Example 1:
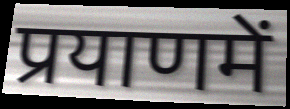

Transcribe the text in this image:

प्रयाणमें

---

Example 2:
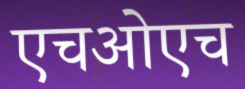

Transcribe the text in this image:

एचओएच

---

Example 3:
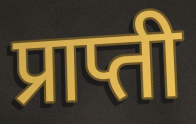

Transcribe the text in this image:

प्राप्ती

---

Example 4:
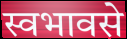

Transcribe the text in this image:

स्वभावसे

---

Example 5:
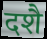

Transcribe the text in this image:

दशै